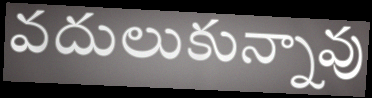
వదులుకున్నావు